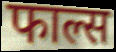
फाल्स